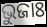
ଭୁଜାଃ